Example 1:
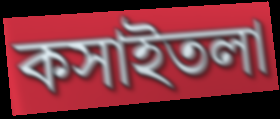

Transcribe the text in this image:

কসাইতলা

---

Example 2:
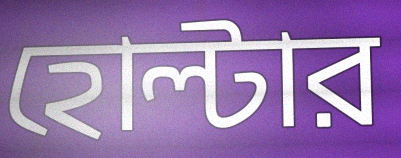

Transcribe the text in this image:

হোল্টার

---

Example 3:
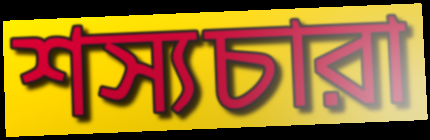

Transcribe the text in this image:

শস্যচারা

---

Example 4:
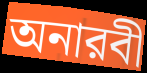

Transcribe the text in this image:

অনারবী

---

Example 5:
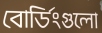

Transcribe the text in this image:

বোর্ডিংগুলো